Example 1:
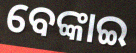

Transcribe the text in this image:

ବେଙ୍କାଇ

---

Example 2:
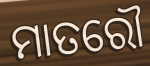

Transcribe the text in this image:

ମାତରୌ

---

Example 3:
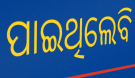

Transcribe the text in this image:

ପାଇଥିଲେବି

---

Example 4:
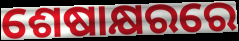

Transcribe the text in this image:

ଶେଷାକ୍ଷରରେ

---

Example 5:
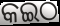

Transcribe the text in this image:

କଇଠ